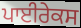
ਪਾਈਰੇਕਸ